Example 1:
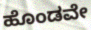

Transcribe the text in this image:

ಹೊಂಡವೇ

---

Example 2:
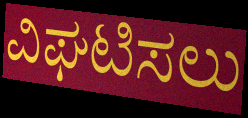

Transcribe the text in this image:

ವಿಘಟಿಸಲು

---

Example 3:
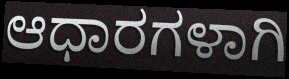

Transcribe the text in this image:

ಆಧಾರಗಳಾಗಿ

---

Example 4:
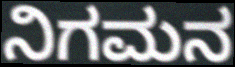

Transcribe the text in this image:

ನಿಗಮನ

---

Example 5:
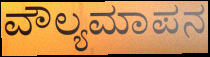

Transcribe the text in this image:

ವೌಲ್ಯಮಾಪನ